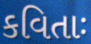
કવિતાઃ